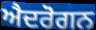
ਐਦਰੋਗਨ